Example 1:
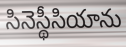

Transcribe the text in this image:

సినెస్థీసియాను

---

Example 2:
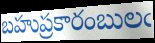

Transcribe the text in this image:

బహుప్రకారంబులఁ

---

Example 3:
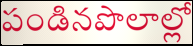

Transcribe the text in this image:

పండినపొలాల్లో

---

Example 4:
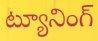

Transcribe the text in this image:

ట్యూనింగ్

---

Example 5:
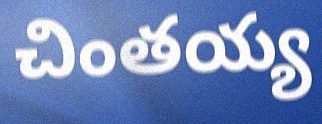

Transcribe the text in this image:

చింతయ్య